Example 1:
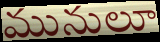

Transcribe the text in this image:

మునులూ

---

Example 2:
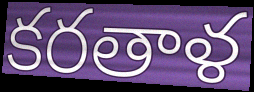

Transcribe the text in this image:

కరతాళ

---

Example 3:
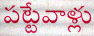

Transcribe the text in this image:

పట్టేవాళ్లు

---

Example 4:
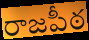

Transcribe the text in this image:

రాజపీఠ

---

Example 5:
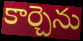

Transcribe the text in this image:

కార్చెను